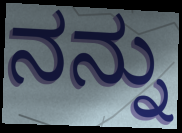
ನನ್ನು